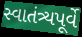
સ્વાતંત્ર્યપૂર્વે